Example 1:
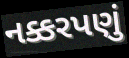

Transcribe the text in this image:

નક્કરપણું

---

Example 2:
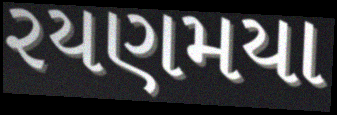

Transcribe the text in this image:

રયણમયા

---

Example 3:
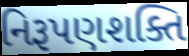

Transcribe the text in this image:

નિરૂપણશક્તિ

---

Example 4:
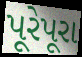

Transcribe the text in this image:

પૂરેપૂરા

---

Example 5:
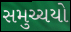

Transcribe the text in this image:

સમુચ્ચયો